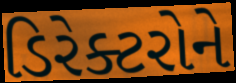
ડિરેક્ટરોને